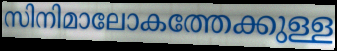
സിനിമാലോകത്തേക്കുള്ള